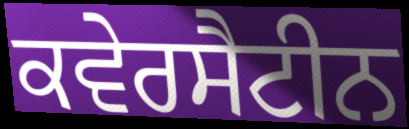
ਕਵੇਰਸੈਟੀਨ